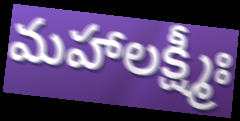
మహాలక్ష్మీః